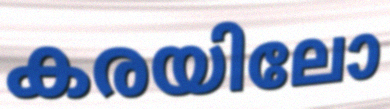
കരയിലോ